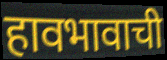
हावभावाची